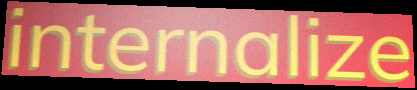
internalize